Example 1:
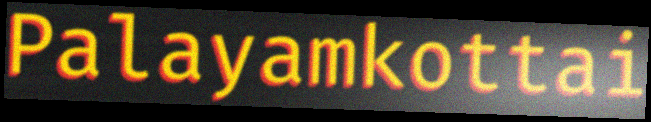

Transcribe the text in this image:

Palayamkottai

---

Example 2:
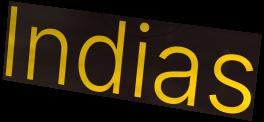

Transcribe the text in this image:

Indias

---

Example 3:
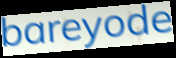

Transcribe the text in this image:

bareyode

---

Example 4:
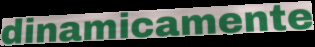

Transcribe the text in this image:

dinamicamente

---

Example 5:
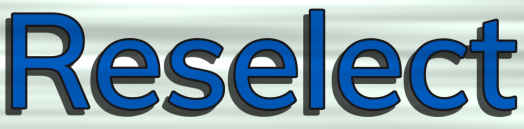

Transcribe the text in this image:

Reselect